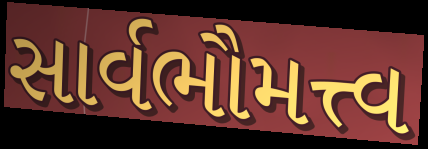
સાર્વભૌમત્ત્વ